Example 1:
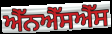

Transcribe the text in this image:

ਐੱਨਐੱਸਐੱਸ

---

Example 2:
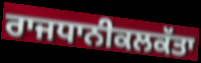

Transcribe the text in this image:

ਰਾਜਧਾਨੀਕਲਕੱਤਾ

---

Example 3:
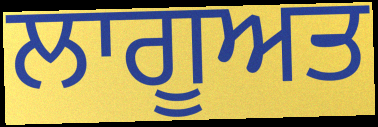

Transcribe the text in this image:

ਲਾਗੂਅਤ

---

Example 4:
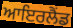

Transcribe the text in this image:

ਆਇਰਲੈਂਡ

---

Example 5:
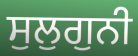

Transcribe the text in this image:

ਸੁਲੁਗੁਨੀ